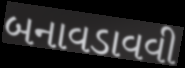
બનાવડાવવી